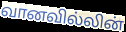
வானவில்லின்